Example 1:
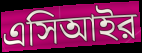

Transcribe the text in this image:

এসিআইর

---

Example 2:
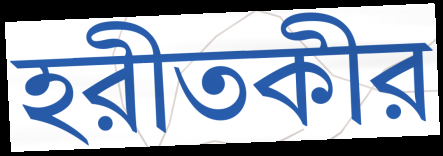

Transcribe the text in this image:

হরীতকীর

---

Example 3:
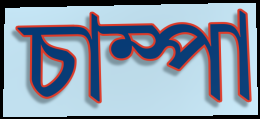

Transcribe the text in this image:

চাম্পা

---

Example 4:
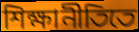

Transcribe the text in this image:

শিক্ষানীতিতে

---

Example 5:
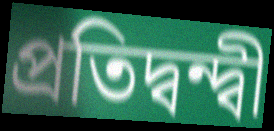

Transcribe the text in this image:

প্রতিদ্বন্দ্বী